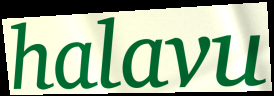
halavu